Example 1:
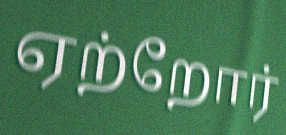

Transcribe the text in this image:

ஏற்றோர்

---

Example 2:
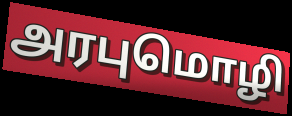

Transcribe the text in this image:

அரபுமொழி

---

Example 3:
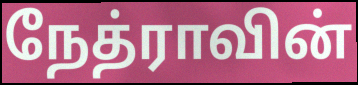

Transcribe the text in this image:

நேத்ராவின்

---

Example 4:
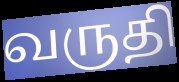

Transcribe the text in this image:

வருதி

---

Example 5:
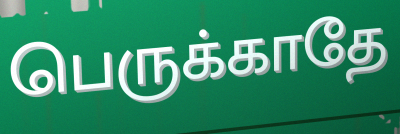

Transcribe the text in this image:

பெருக்காதே